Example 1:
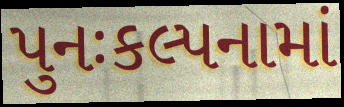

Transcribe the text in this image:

પુનઃકલ્પનામાં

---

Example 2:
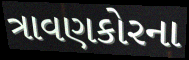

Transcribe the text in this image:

ત્રાવણકોરના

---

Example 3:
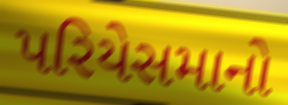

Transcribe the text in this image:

પરિયેસમાનો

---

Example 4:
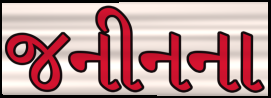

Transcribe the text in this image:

જનીનના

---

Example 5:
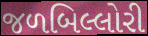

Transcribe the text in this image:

જળબિલ્લોરી